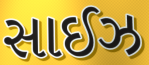
સાઈઝ